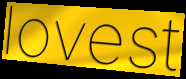
lovest